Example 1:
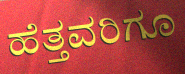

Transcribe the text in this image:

ಹೆತ್ತವರಿಗೂ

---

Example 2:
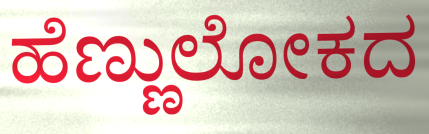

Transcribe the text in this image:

ಹೆಣ್ಣುಲೋಕದ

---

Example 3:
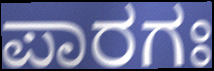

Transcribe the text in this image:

ಪಾರಗಃ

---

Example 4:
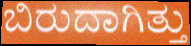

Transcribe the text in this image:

ಬಿರುದಾಗಿತ್ತು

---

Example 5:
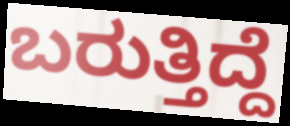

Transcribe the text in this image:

ಬರುತ್ತಿದ್ದೆ